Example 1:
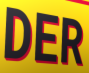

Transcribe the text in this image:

DER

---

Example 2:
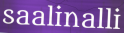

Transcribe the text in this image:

saalinalli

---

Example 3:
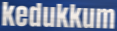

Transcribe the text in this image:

kedukkum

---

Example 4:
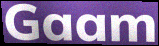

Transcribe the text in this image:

Gaam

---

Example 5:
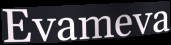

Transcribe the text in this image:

Evameva